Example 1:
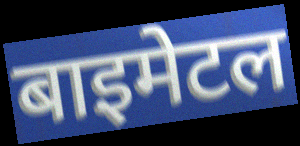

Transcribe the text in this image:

बाइमेटल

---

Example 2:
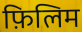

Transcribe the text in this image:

फ़िलिम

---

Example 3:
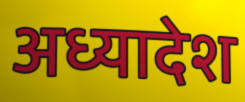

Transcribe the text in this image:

अध्यादेश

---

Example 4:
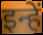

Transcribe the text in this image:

इन्हें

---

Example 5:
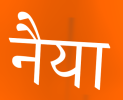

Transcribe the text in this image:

नैया